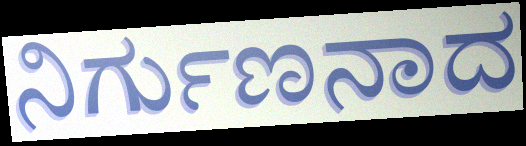
ನಿರ್ಗುಣನಾದ